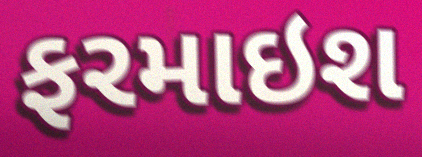
ફરમાઇશ